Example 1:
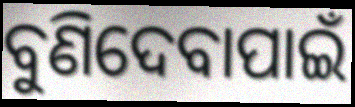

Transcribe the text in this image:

ବୁଣିଦେବାପାଇଁ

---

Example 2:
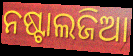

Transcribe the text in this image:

ନଷ୍ଟାଲଜିଆ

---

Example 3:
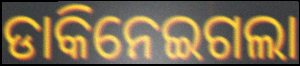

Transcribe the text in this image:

ଡାକିନେଇଗଲା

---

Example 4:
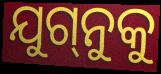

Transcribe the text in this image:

ଯୁଗ୍‌ନୁକୁ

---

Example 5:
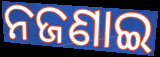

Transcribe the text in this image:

ନଜଣାଇ